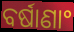
ବର୍ଷାଣାଂ